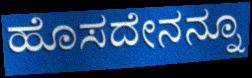
ಹೊಸದೇನನ್ನೂ